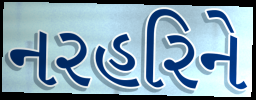
નરહરિને